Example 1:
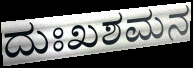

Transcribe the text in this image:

ದುಃಖಶಮನ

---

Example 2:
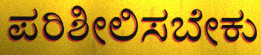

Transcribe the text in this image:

ಪರಿಶೀಲಿಸಬೇಕು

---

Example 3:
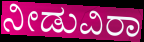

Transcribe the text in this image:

ನೀಡುವಿರಾ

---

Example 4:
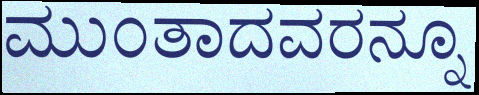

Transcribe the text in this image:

ಮುಂತಾದವರನ್ನೂ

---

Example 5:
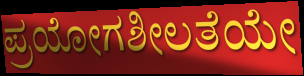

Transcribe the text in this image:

ಪ್ರಯೋಗಶೀಲತೆಯೇ